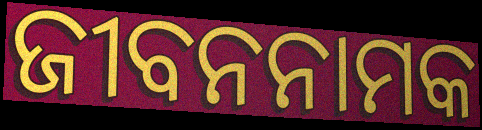
ଜୀବନନାମକ